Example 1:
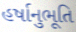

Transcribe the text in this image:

હર્ષાનુભૂતિ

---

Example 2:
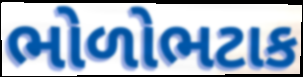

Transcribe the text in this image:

ભોળોભટાક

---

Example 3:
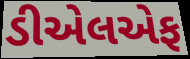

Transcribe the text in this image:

ડીએલએફ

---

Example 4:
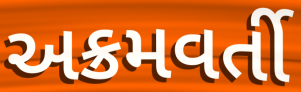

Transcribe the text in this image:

અક્રમવર્તી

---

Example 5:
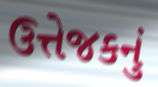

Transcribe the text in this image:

ઉત્તેજકનું